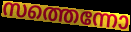
സത്തെന്നോ